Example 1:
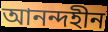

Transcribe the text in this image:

আনন্দহীন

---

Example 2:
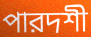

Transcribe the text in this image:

পারদশী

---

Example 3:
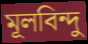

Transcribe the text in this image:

মূলবিন্দু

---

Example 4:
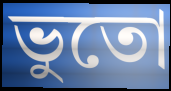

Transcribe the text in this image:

ভুতো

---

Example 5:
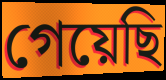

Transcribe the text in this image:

গেয়েছি